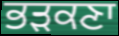
ਭੜਕਣਾ